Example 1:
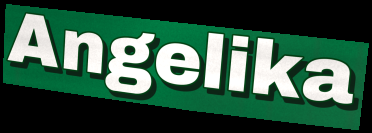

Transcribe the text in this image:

Angelika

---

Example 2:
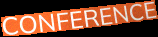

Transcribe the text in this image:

CONFERENCE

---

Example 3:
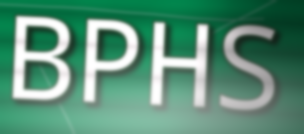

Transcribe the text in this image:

BPHS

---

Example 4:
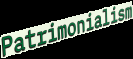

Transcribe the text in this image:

Patrimonialism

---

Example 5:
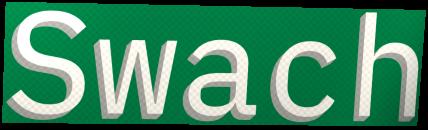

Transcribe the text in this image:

Swach